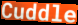
Cuddle